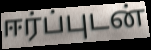
ஈர்ப்புடன்